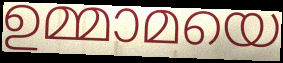
ഉമ്മാമയെ